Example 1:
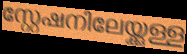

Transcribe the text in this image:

സ്റ്റേഷനിലേയ്ക്കുള്ള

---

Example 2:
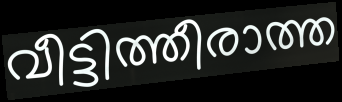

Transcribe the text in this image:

വീട്ടിത്തീരാത്ത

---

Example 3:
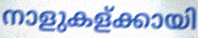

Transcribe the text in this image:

നാളുകള്ക്കായി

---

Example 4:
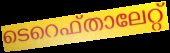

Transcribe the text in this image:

ടെറെഫ്താലേറ്റ്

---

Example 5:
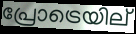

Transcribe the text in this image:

പ്രോട്രെയില്